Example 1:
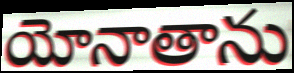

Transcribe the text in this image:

యోనాతాను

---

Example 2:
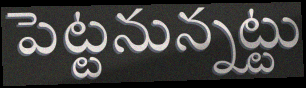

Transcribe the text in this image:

పెట్టనున్నట్టు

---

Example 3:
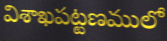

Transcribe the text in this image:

విశాఖపట్టణములో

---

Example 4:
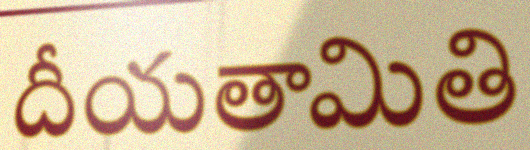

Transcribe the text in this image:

దీయతామితి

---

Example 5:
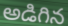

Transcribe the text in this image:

అడిగిన